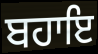
ਬਹਾਇ